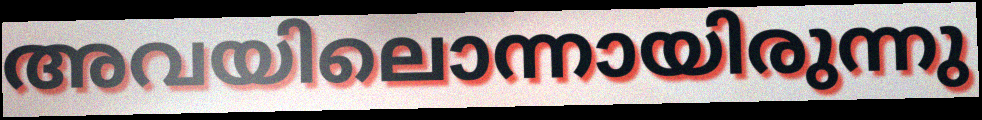
അവയിലൊന്നായിരുന്നു